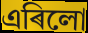
এৰিলো